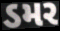
ડમર